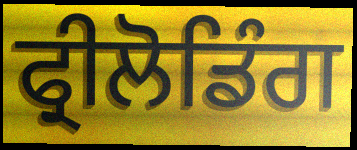
ਫ੍ਰੀਲੋਡਿੰਗ